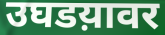
उघडय़ावर